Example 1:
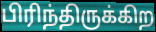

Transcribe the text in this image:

பிரிந்திருக்கிற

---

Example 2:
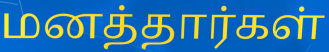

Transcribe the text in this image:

மனத்தார்கள்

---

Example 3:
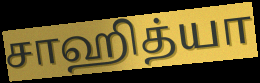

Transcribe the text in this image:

சாஹித்யா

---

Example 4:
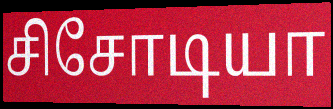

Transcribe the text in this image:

சிசோடியா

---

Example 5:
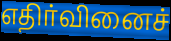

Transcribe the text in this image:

எதிர்வினைச்